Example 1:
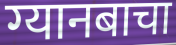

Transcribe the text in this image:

ग्यानबाचा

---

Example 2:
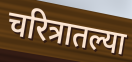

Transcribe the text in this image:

चरित्रातल्या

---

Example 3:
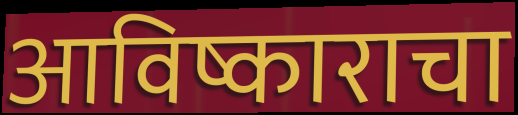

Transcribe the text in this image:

आविष्काराचा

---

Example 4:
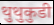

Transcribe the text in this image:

थुथुकुडी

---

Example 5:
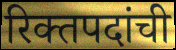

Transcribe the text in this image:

रिक्तपदांची